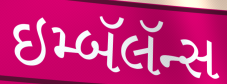
ઇમ્બૅલૅન્સ